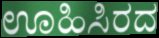
ಊಹಿಸಿರದ